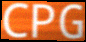
CPG